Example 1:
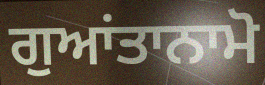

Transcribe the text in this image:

ਗੁਆਂਤਾਨਾਮੋ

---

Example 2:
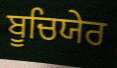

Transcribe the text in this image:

ਬੂਚਿਯੇਰ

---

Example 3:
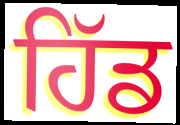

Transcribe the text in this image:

ਹਿੱਡ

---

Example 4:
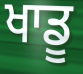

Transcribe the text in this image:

ਖਾਡੂ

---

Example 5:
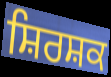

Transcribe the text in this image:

ਸ਼ਿਰਸ਼ਕ